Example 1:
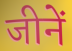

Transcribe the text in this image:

जीनें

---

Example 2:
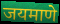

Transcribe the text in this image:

जयमाणे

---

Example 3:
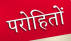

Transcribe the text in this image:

परोहितों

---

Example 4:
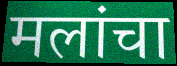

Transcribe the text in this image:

मलांचा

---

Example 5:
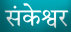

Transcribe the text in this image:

संकेश्वर